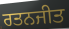
ਰਤਨਜੀਤ